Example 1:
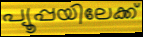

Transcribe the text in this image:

പ്യൂപ്പയിലേക്ക്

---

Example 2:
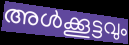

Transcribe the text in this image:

അൾക്കൂട്ടവും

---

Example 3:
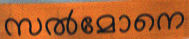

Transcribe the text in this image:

സൽമോനെ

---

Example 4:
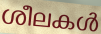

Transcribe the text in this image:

ശീലകൾ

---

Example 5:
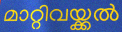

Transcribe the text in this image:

മാറ്റിവയ്ക്കൽ